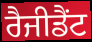
ਰੈਜੀਡੈਂਟ